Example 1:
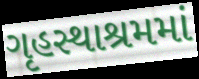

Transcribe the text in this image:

ગૃહસ્થાશ્રમમાં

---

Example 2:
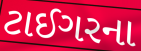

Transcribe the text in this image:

ટાઈગરના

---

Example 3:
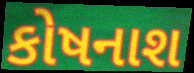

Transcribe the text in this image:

કોષનાશ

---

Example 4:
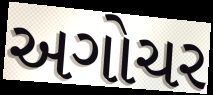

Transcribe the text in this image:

અગોચર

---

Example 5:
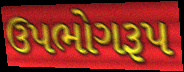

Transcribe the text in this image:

ઉપભોગરૂપ